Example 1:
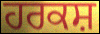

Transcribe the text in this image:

ਹਰਕਸ਼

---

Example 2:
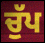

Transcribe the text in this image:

ਚੁੱਪ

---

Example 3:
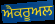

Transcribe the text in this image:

ਐਕਰੂਅਲ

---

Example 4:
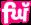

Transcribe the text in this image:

ਘਿੱ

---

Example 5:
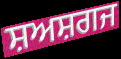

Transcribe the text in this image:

ਸ਼ਅਸ਼ਗਜ